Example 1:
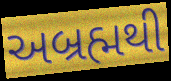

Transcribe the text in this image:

અબ્રહ્મથી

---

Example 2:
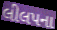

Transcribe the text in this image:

લીલપના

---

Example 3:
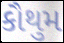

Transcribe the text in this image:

કૌથુમ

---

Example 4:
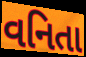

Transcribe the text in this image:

વનિતા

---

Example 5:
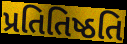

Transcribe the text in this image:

પ્રતિતિષ્ઠતિ